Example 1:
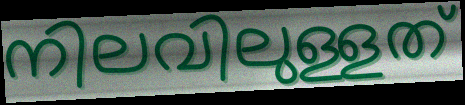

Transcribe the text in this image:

നിലവിലുള്ളത്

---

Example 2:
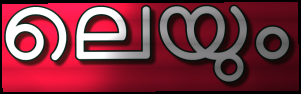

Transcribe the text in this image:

ലെയും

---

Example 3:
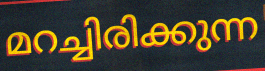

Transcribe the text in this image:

മറച്ചിരിക്കുന്ന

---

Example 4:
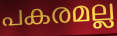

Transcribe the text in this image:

പകരമല്ല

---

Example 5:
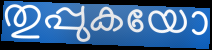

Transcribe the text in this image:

തുപ്പുകയോ